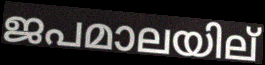
ജപമാലയില്